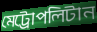
মেট্রোপলিটান